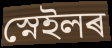
স্নেইলৰ